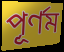
পূর্ণম